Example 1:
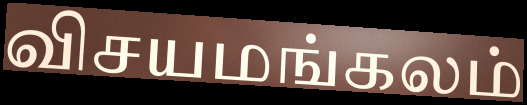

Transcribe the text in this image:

விசயமங்கலம்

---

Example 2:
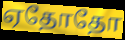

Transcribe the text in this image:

ஏதோதோ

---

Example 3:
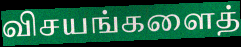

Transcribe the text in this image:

விசயங்களைத்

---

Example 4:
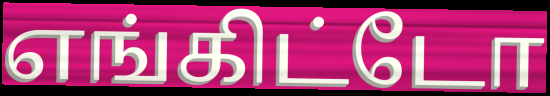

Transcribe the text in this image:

எங்கிட்டோ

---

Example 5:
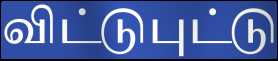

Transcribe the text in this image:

விட்டுபுட்டு